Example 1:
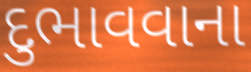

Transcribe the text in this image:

દુભાવવાના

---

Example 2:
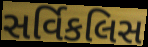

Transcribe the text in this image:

સર્વિકલિસ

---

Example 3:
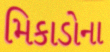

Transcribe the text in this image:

મિકાડોના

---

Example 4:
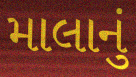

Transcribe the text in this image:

માલાનું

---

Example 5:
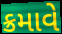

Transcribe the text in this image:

ક્રમાવે